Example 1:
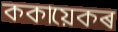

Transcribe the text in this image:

ককায়েকৰ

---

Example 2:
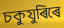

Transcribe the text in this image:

চকুযুৰিৰে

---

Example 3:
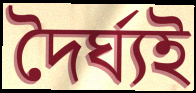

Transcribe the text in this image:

দৈৰ্ঘ্যই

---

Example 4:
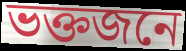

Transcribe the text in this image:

ভক্তজনে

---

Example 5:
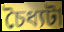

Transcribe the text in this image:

চৈধ্যটা